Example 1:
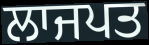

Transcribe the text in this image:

ਲਾਜਪਤ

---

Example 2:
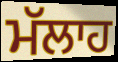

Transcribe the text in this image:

ਮੱਲਾਹ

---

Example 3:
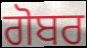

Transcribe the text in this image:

ਗੋਬਰ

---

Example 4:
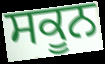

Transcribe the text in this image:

ਸਕੂਨ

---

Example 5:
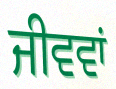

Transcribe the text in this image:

ਜੀਵਵਾਂ